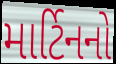
માર્ટિનનો